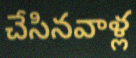
చేసినవాళ్ల